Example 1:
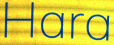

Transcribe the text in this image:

Hara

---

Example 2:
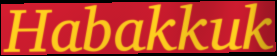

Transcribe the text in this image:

Habakkuk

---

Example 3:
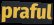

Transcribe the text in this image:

praful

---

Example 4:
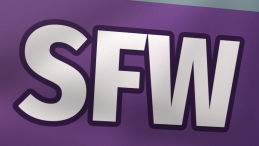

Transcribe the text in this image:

SFW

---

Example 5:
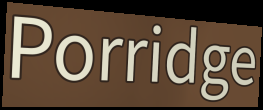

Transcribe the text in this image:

Porridge